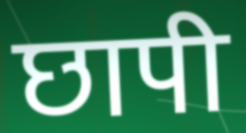
छापी